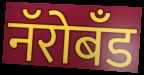
नॅरोबँड